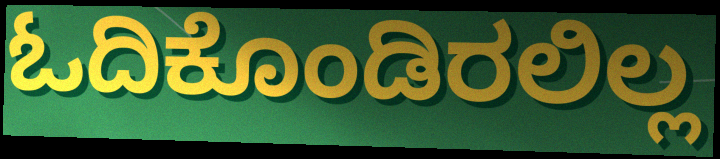
ಓದಿಕೊಂಡಿರಲಿಲ್ಲ